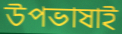
উপভাষাই